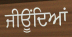
ਜੀਊਂਦਿਆਂ